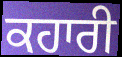
ਕਹਾਰੀ